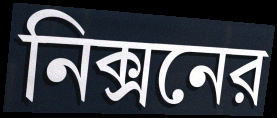
নিক্সনের